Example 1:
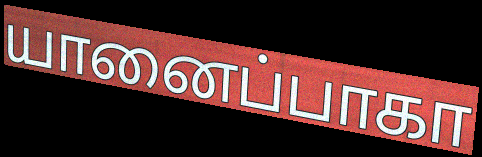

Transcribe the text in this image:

யானைப்பாகா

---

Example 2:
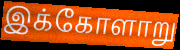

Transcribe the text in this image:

இக்கோளாறு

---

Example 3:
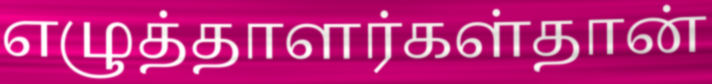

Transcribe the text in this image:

எழுத்தாளர்கள்தான்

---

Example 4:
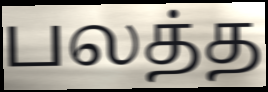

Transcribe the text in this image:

பலத்த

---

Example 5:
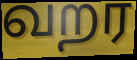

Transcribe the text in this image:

வறர